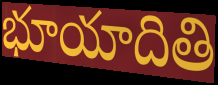
భూయాదితి